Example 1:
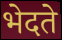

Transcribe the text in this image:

भेदते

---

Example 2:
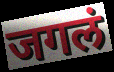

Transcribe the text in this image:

जगलं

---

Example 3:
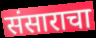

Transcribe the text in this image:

संसाराचा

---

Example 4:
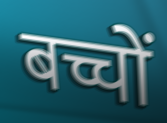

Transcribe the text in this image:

बच्चों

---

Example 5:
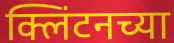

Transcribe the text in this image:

क्लिंटनच्या